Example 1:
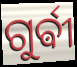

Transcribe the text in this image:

ଗୁର୍ଵୀ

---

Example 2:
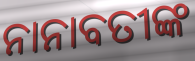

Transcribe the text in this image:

ନାନାବତୀଙ୍କ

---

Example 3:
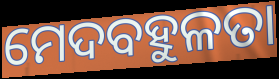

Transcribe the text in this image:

ମେଦବହୁଳତା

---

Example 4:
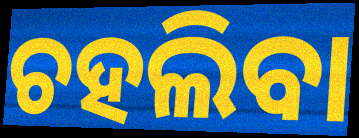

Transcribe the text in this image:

ଚହଲିବା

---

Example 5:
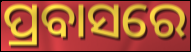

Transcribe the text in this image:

ପ୍ରବାସରେ